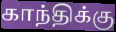
காந்திக்கு